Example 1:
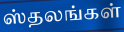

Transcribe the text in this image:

ஸ்தலங்கள்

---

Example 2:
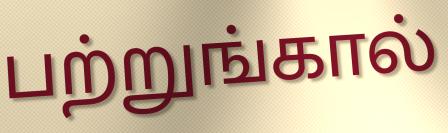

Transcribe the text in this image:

பற்றுங்கால்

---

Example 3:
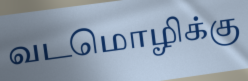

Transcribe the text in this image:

வடமொழிக்கு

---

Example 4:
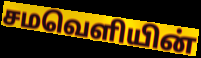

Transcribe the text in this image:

சமவெளியின்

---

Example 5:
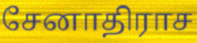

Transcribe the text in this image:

சேனாதிராச